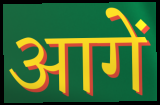
आगें